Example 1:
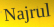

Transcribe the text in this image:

Najrul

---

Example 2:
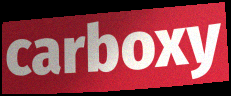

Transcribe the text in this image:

carboxy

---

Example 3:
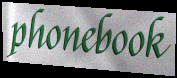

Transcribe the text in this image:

phonebook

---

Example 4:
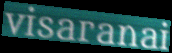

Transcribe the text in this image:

visaranai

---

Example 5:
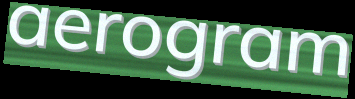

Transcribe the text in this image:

aerogram